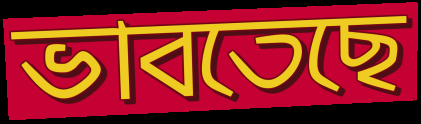
ভাবতেছে